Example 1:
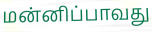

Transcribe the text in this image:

மன்னிப்பாவது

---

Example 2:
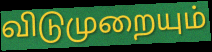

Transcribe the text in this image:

விடுமுறையும்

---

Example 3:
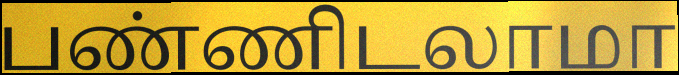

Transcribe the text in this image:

பண்ணிடலாமா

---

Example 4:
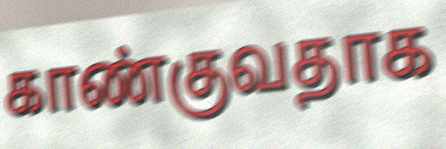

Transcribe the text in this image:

காண்குவதாக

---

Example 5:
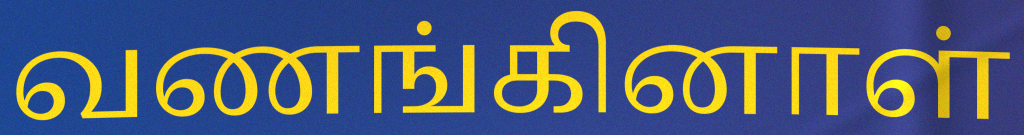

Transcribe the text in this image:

வணங்கினாள்